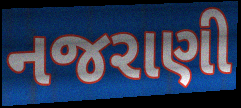
નજરાણી